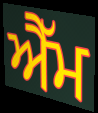
ਐੈੱਮ